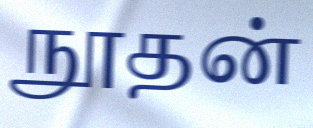
நூதன்